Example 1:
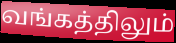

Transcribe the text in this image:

வங்கத்திலும்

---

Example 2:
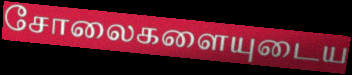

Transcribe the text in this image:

சோலைகளையுடைய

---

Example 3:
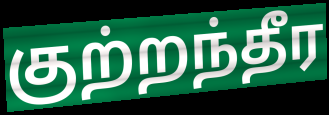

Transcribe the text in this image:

குற்றந்தீர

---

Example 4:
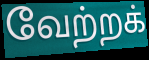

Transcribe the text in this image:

வேற்றக்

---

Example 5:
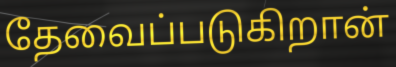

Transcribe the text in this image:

தேவைப்படுகிறான்